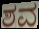
ಶವ